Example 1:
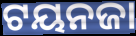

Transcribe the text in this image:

ଟୟନଜା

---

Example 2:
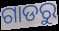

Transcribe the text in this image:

ଗାଡରୁ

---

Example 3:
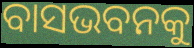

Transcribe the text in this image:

ବାସଭବନକୁ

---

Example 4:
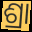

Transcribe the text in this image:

ଶ୍ରା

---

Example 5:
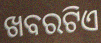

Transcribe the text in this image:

ଖବରଟିଏ